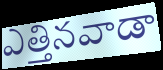
ఎత్తినవాడా